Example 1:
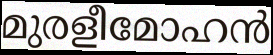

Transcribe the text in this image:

മുരളീമോഹൻ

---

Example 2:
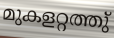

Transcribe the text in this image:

മുകളറ്റത്തു്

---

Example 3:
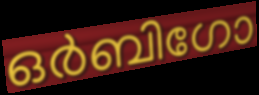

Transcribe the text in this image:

ഒർബിഗോ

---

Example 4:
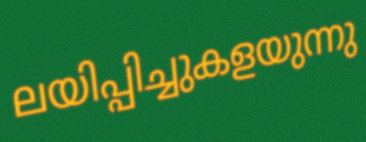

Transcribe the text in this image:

ലയിപ്പിച്ചുകളയുന്നു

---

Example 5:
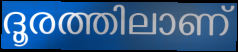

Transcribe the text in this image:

ദൂരത്തിലാണ്